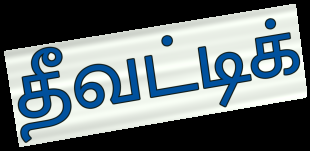
தீவட்டிக்